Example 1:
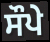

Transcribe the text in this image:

ਸੌਪੇ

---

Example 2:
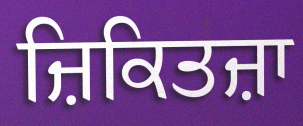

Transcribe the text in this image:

ਜ਼ਿਕਿਤਜ਼ਾ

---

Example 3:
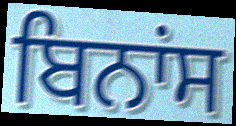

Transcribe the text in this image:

ਬਿਨਾਂਸ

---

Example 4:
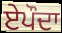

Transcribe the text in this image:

ਏਪੌਦਾ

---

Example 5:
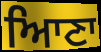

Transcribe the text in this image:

ਆਿਣਾ